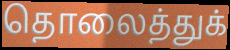
தொலைத்துக்